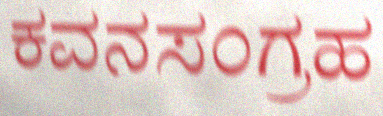
ಕವನಸಂಗ್ರಹ